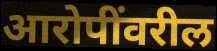
आरोपींवरील